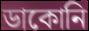
ডাকোনি